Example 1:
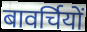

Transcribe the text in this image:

बावर्चियों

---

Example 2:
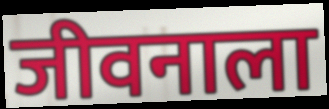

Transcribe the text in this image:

जीवनाला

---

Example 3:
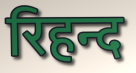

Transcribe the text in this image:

रिहन्द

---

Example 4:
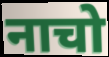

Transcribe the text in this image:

नाचो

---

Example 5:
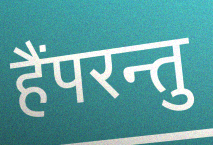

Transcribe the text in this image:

हैंपरन्तु